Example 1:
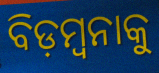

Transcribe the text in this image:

ବିଡ଼ମ୍ୱନାକୁ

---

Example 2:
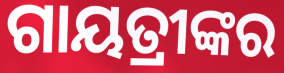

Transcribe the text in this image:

ଗାୟତ୍ରୀଙ୍କର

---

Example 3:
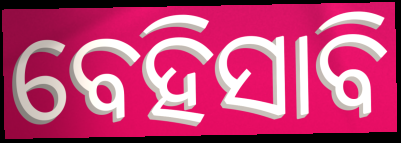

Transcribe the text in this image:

ବେହିସାବି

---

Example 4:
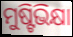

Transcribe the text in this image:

ମୁଷ୍ଟିଭିକ୍ଷା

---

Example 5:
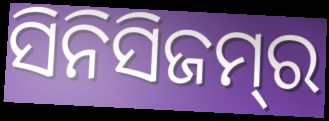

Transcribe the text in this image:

ସିନିସିଜମ୍‌ର